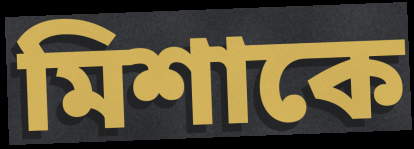
মিশাকে